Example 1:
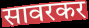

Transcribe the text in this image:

सावरकर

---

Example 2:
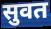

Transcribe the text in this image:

सुवत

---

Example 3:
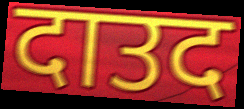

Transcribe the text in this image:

दाउद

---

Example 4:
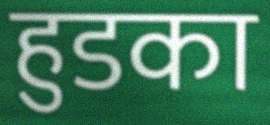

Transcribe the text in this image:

हुडका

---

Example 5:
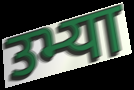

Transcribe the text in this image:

उभ्या